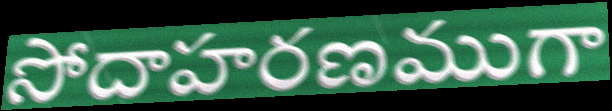
సోదాహరణముగా